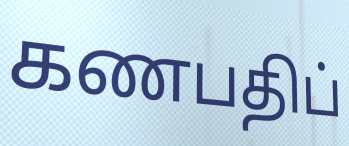
கணபதிப்